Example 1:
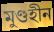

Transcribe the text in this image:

মুণ্ডহীন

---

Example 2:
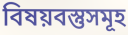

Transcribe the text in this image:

বিষয়বস্তুসমূহ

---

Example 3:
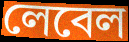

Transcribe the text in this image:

লেবেল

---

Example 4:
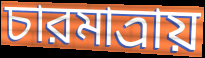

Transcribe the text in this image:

চারমাত্রায়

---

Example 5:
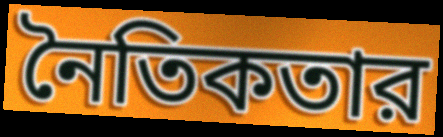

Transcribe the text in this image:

নৈতিকতার